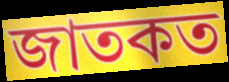
জাতকত